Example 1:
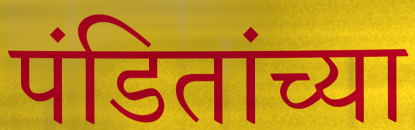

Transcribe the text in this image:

पंडितांच्या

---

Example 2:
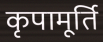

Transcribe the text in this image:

कृपामूर्ति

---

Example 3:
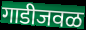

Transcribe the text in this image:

गाडीजवळ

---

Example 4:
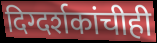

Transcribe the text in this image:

दिग्दर्शकांचीही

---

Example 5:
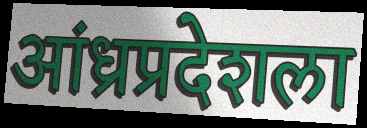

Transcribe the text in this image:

आंध्रप्रदेशला